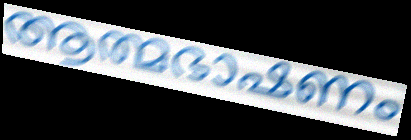
ആത്മഭാഷണം